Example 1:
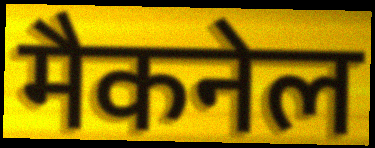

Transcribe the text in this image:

मैकनेल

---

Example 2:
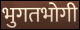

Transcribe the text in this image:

भुगतभोगी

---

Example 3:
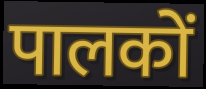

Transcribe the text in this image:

पालकों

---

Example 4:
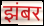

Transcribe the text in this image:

झंबर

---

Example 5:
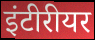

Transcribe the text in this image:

इंटीरीयर